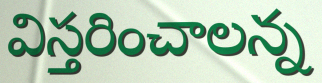
విస్తరించాలన్న